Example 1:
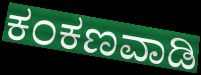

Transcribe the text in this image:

ಕಂಕಣವಾಡಿ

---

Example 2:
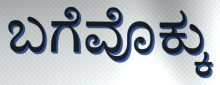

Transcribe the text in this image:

ಬಗೆವೊಕ್ಕು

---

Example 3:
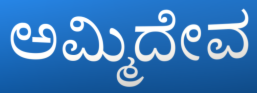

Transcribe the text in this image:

ಅಮ್ಮಿದೇವ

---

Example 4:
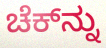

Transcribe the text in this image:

ಚೆಕ್‌ನ್ನು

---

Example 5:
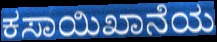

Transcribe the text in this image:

ಕಸಾಯಿಖಾನೆಯ